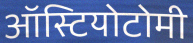
ऑस्टियोटोमी